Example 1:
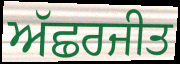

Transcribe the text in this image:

ਅੱਛਰਜੀਤ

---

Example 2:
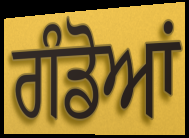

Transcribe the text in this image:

ਗੰਡੋਆਂ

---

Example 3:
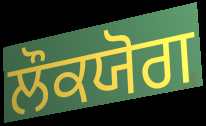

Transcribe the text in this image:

ਲੌਕਯੋਗ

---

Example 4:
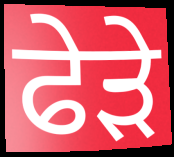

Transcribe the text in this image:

ਫੇੜੇ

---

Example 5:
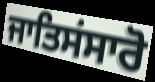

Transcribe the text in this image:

ਜਾਤਿਸਂਸਾਰੋ